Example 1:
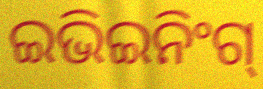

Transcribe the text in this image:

ଇଭିଇନିଂଗ୍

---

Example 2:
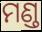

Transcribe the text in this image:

ମଣ୍ଡ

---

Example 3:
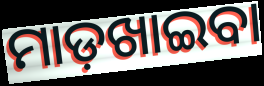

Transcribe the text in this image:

ମାଡ଼ଖାଇବା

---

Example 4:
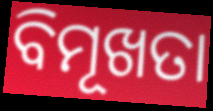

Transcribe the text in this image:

ବିମୂଖତା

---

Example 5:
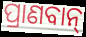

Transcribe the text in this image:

ପ୍ରାଣବାନ୍